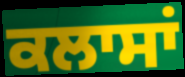
ਕਲਾਸਾਂ